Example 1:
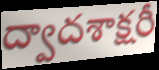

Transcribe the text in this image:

ద్వాదశాక్షరీ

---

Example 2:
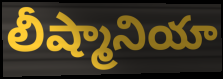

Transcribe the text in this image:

లీష్మానియా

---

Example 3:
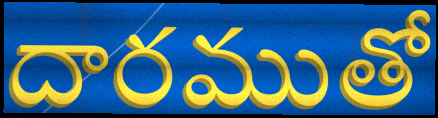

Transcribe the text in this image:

దారముతో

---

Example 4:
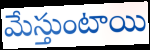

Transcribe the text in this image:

మేస్తుంటాయి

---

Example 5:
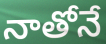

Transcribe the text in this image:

నాతోనే